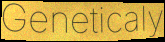
Geneticaly